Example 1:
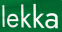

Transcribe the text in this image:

lekka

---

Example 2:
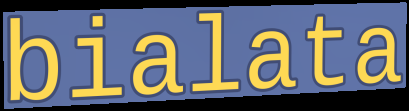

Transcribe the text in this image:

bialata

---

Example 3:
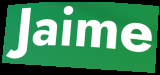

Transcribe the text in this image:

Jaime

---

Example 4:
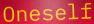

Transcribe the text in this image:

Oneself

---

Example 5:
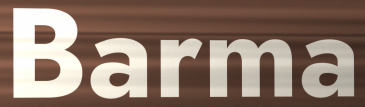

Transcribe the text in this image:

Barma